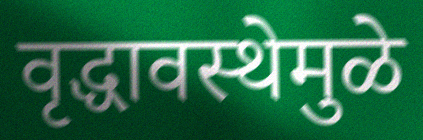
वृद्धावस्थेमुळे